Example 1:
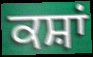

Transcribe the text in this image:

ਕਸ਼ਾਂ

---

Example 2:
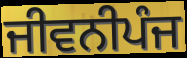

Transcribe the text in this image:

ਜੀਵਨੀਪੰਜ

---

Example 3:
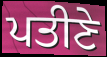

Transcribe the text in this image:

ਪਤੀਣੇ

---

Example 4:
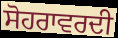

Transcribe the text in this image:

ਸੋਹਰਾਵਰਦੀ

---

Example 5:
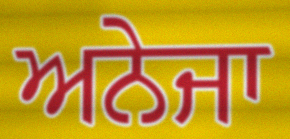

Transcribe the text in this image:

ਅਨੇਜਾ